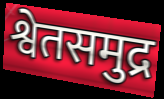
श्वेतसमुद्र